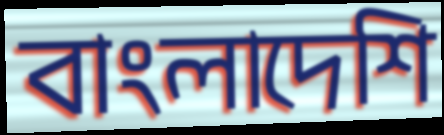
বাংলাদেশি